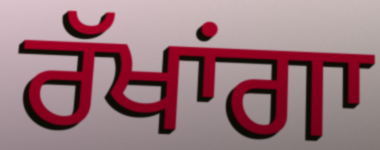
ਰੱਖਾਂਗਾ